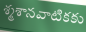
శ్మశానవాటికకు